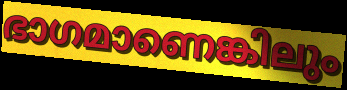
ഭാഗമാണെങ്കിലും